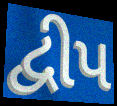
દ્વીપ